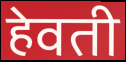
हेवती